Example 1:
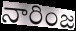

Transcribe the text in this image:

నారింజ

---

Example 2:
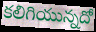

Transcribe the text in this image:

కలిగియున్నదో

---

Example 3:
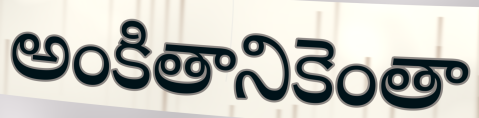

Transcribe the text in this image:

అంకితానికెంతా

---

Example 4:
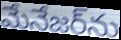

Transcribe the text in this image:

మేనేజర్‌ను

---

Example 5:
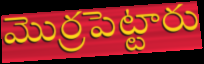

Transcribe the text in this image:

మొర్రపెట్టారు